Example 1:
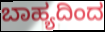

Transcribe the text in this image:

ಬಾಹ್ಯದಿಂದ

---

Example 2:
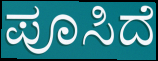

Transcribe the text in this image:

ಪೂಸಿದೆ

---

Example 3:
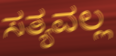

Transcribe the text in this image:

ಸತ್ಯವಲ್ಲ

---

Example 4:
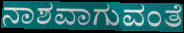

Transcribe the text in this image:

ನಾಶವಾಗುವಂತೆ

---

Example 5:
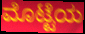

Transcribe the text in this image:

ಮೊಟ್ಟೆಯ